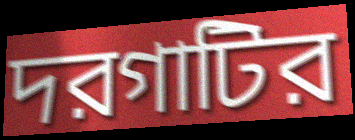
দরগাটির